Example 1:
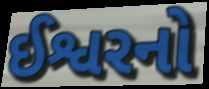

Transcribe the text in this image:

ઈશ્વરનો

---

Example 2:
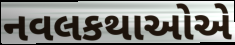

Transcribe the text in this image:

નવલકથાઓએ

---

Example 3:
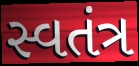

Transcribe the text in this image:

સ્વતંત્ર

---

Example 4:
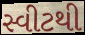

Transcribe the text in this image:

સ્વીટથી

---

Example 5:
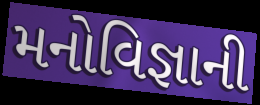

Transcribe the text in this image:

મનોવિજ્ઞાની